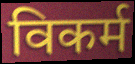
विकर्म